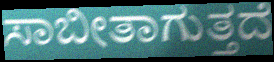
ಸಾಬೀತಾಗುತ್ತದೆ